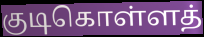
குடிகொள்ளத்